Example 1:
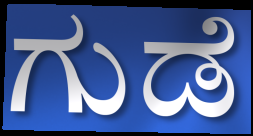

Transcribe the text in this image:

ಗುಡೆ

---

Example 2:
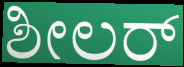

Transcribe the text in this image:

ಶೀಲರ್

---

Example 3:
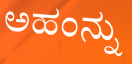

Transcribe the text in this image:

ಅಹಂನ್ನು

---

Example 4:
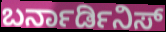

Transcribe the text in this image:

ಬರ್ನಾರ್ಡಿನಿಸ್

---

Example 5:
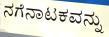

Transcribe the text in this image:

ನಗೆನಾಟಕವನ್ನು